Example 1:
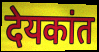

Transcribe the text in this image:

देयकांत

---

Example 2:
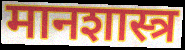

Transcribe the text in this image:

मानशास्त्र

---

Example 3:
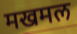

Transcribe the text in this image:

मखमल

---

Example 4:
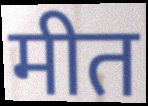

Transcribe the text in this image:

मीत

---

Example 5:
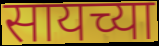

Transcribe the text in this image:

सायच्या